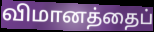
விமானத்தைப்